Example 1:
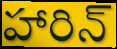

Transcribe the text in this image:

హారిన్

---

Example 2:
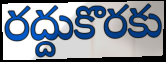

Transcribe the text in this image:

రద్దుకొరకు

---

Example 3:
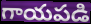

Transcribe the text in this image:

గాయపడి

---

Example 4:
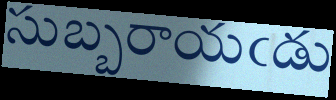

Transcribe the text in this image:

సుబ్బరాయఁడు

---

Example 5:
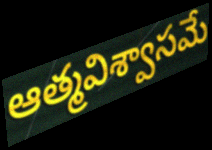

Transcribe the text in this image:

ఆత్మవిశ్వాసమే